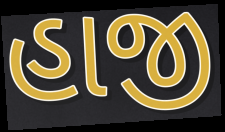
હાજી